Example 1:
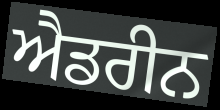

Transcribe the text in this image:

ਐਡਰੀਨ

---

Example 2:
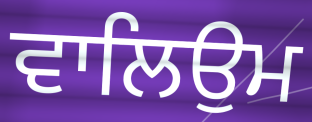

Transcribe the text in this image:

ਵਾਲਿਉਮ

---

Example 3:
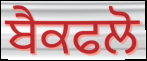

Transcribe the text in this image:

ਬੈਕਫਲੋ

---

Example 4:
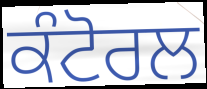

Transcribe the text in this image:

ਕੰਟੋਰਲ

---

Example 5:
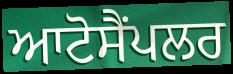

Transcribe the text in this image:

ਆਟੋਸੈਂਪਲਰ